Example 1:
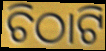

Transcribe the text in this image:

ଚିଠାଟି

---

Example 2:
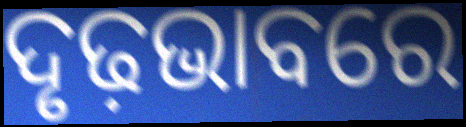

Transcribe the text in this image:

ଦୃଢ଼ଭାବରେ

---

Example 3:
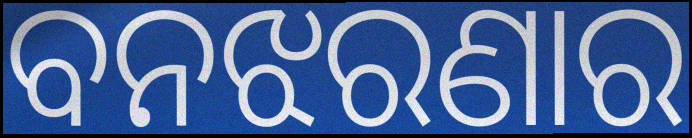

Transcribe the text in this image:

ବନଝରଣାର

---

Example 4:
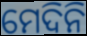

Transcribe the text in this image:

ମେଦିନି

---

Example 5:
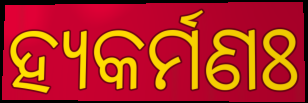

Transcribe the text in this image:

ହ୍ୟକର୍ମଣଃ